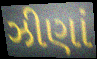
ઝીણાં